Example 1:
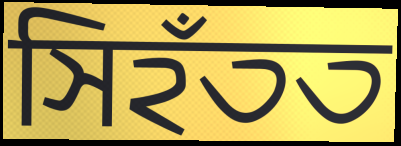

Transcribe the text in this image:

সিহঁতত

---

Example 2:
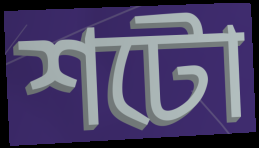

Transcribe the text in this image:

শটো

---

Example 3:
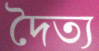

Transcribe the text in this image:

দৈত্য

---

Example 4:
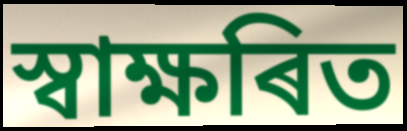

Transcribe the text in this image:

স্বাক্ষৰিত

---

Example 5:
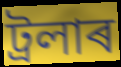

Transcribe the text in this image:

ট্ৰলাৰ